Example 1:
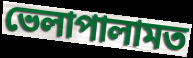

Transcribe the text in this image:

ভেলাপালামত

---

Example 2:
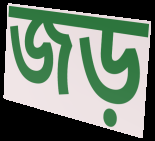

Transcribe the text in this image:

জড়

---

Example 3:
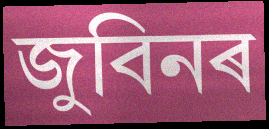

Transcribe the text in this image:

জুবিনৰ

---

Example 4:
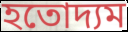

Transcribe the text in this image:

হতোদ্যম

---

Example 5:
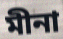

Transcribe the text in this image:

মীনা